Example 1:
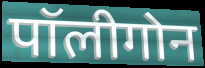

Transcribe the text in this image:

पॉलीगोन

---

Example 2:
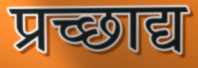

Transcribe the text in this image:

प्रच्छाद्य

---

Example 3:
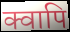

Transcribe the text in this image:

क्वापि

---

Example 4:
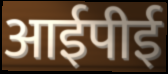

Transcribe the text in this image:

आईपीई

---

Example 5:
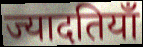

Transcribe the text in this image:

ज्यादतियाँ